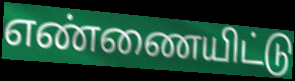
எண்ணையிட்டு